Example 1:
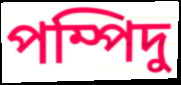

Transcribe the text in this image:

পম্পিদু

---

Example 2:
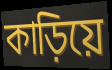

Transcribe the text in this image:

কাড়িয়ে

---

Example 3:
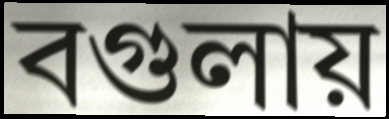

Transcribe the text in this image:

বগুলায়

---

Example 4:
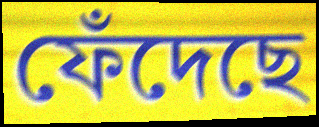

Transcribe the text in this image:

ফেঁদেছে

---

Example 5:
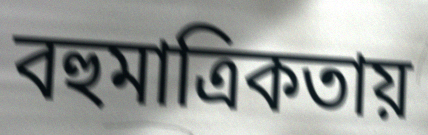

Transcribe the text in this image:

বহুমাত্রিকতায়